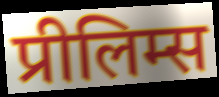
प्रीलिम्स